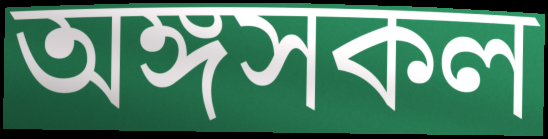
অঙ্গসকল